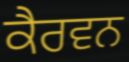
ਕੈਰਵਨ